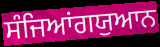
ਸੰਜਿਆਂਗਯੁਆਨ